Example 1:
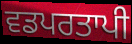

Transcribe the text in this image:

ਵਡਪਰਤਾਪੀ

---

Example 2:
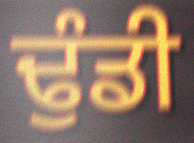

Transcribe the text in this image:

ਢੁੰਡੀ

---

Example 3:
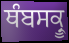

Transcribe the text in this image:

ਥੰਬਸਕ੍ਰੂ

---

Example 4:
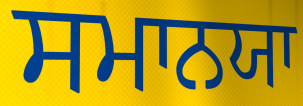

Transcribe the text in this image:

ਸਮਾਨਯਾ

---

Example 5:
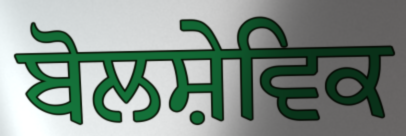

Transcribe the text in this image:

ਬੋਲਸ਼ੇਵਿਕ